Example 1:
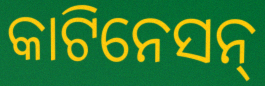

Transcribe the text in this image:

କାଟିନେସନ୍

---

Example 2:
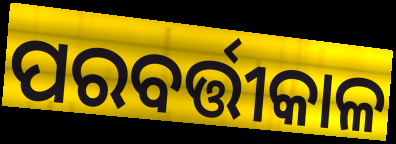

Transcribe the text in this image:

ପରବର୍ତ୍ତୀକାଳ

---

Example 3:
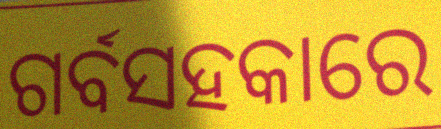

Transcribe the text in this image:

ଗର୍ବସହକାରେ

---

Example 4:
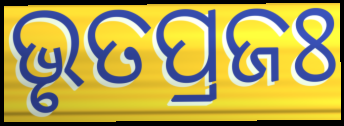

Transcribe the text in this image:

ଭୃତପ୍ରଜଃ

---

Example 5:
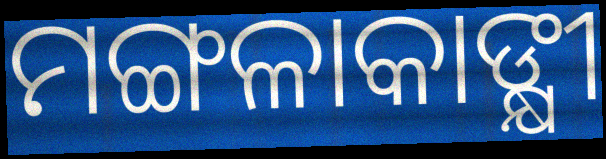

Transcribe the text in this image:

ମଙ୍ଗଳାକାଙ୍କ୍ଷୀ